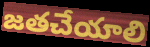
జతచేయాలి